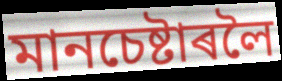
মানচেষ্টাৰলৈ